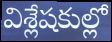
విశ్లేషకుల్లో